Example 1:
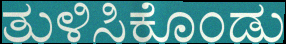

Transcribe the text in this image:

ತುಳಿಸಿಕೊಂಡು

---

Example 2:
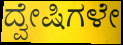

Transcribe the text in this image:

ದ್ವೇಷಿಗಳೇ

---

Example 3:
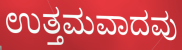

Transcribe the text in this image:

ಉತ್ತಮವಾದವು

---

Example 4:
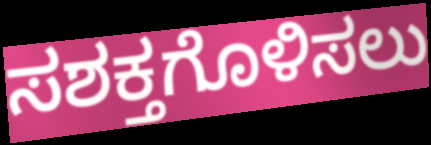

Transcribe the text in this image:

ಸಶಕ್ತಗೊಳಿಸಲು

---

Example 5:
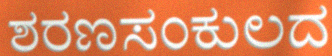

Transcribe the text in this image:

ಶರಣಸಂಕುಲದ